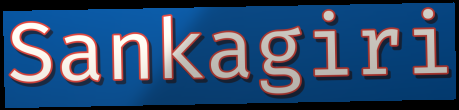
Sankagiri